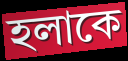
হলাকে